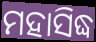
ମହାସିଦ୍ଧ